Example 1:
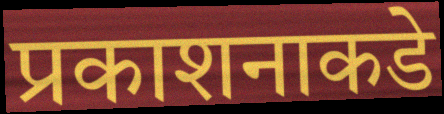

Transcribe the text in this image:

प्रकाशनाकडे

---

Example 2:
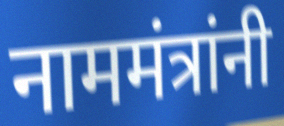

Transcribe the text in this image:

नाममंत्रांनी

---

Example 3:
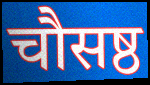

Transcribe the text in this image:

चौसष्ठ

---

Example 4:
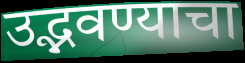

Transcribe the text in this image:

उद्भवण्याचा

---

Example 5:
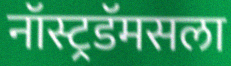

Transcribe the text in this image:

नॉस्ट्रडॅमसला